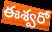
ఈశ్వరో